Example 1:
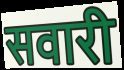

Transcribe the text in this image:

सवारी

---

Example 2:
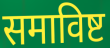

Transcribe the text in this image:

समाविष्ट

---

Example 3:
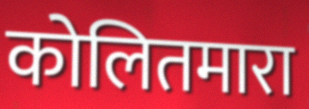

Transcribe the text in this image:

कोलितमारा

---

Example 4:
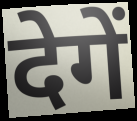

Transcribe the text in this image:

देगें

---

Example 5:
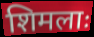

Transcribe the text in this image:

शिमलाः